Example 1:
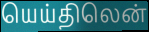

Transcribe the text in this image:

யெய்திலென்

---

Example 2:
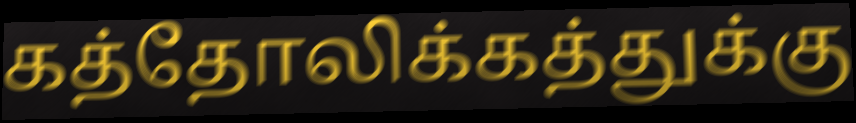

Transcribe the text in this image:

கத்தோலிக்கத்துக்கு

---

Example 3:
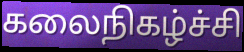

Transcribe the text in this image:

கலைநிகழ்ச்சி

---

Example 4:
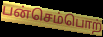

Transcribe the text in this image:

பன்செம்பொற்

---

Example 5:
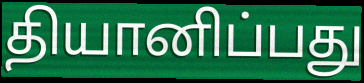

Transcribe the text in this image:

தியானிப்பது